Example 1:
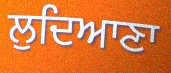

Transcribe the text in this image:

ਲੁਦਿਆਣਾ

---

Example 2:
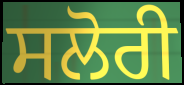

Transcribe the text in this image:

ਸਲੋਰੀ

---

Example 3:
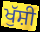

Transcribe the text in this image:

ਖੁੱਸ਼ੀ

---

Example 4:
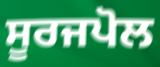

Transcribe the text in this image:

ਸੂਰਜਪੋਲ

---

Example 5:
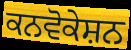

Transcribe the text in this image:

ਕਨਵੋਕੇਸ਼ਨ